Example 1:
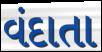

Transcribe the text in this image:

વંદાતા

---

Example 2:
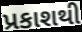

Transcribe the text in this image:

પ્રકાશથી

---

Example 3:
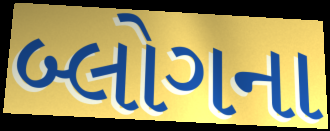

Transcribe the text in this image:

બ્લોગના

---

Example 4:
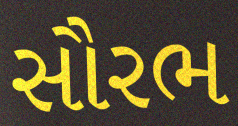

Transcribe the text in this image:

સૌરભ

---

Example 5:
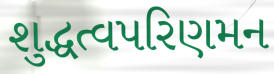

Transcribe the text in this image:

શુદ્ધત્વપરિણમન